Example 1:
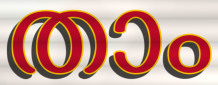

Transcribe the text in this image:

താം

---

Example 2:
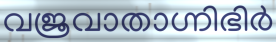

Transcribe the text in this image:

വജ്രവാതാഗ്നിഭിർ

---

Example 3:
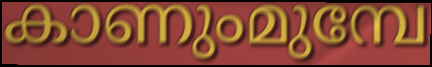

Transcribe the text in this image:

കാണുംമുമ്പേ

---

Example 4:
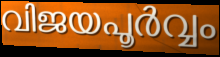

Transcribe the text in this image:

വിജയപൂർവ്വം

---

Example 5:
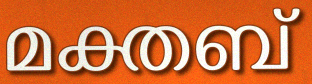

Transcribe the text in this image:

മക്തബ്